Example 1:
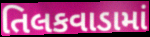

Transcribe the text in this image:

તિલકવાડામાં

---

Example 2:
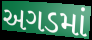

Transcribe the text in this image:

અગડમાં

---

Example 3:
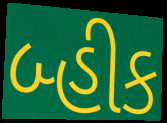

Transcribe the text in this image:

બ્હીક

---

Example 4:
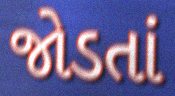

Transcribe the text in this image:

જોડતાં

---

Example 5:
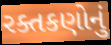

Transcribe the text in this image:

રક્તકણોનું